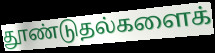
தூண்டுதல்களைக்